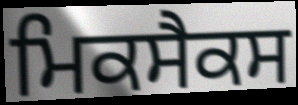
ਮਿਕਸੈਕਸ